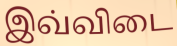
இவ்விடை